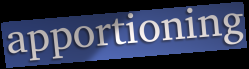
apportioning